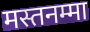
मस्तनम्मा